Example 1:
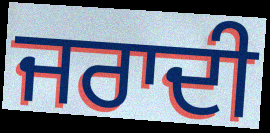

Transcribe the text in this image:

ਜਰਾਦੀ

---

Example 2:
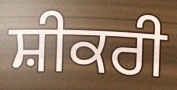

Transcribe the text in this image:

ਸ਼ੀਕਰੀ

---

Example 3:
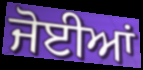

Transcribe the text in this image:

ਜੋਈਆਂ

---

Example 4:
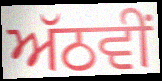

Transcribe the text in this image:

ਅੱਠਵੀਂ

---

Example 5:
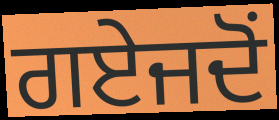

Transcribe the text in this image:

ਗਏਜਦੋਂ